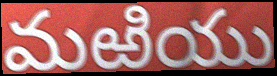
మఱియు